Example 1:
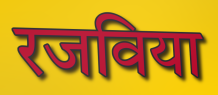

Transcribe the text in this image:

रजविया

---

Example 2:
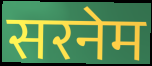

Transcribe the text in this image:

सरनेम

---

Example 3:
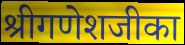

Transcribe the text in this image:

श्रीगणेशजीका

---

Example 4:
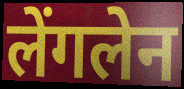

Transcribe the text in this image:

लेंगलेन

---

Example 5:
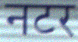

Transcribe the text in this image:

नटर